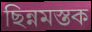
ছিন্নমস্তক